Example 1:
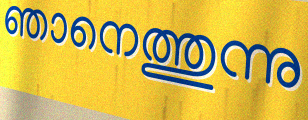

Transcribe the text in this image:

ഞാനെത്തുന്നു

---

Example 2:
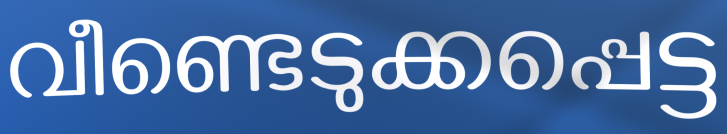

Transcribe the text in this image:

വീണ്ടെടുക്കപ്പെട്ട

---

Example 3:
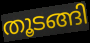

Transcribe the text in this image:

തൂടങ്ങി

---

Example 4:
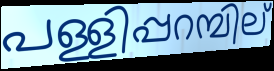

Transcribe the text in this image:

പള്ളിപ്പറമ്പില്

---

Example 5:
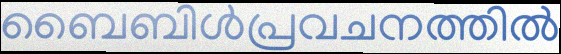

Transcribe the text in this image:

ബൈബിൾപ്രവചനത്തിൽ